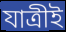
যাত্রীই